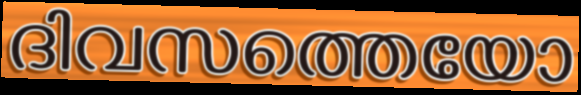
ദിവസത്തെയോ